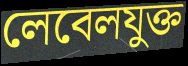
লেবেলযুক্ত